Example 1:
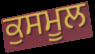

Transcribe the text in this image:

ਕੁਸਮੂਲ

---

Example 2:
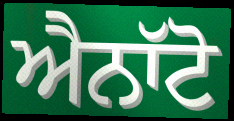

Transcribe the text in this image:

ਐਨਾੱਟੋ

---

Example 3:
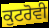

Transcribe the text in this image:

ਕੁਟਰੋਵੀ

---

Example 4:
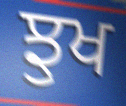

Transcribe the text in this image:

ਝੁਖ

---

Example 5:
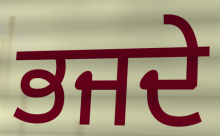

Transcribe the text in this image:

ਭਜਦੇ